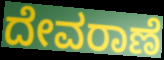
ದೇವರಾಣೆ